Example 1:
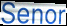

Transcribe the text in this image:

Senor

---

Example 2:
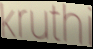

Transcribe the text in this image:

kruthi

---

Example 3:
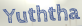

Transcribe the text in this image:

Yuththa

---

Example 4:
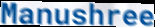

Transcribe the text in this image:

Manushree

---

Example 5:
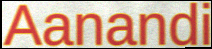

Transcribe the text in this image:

Aanandi